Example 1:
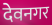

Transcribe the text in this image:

देवनगर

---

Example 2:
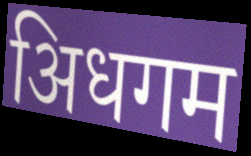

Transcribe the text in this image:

अिधगम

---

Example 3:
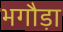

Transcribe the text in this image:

भगौड़ा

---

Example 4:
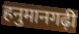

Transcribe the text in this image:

हनुमानगढ़ी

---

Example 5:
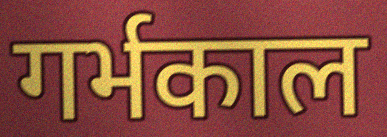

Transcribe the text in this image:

गर्भकाल